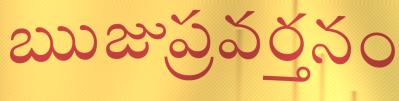
ఋజుప్రవర్తనం